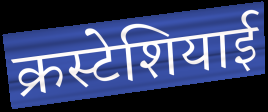
क्रस्टेशियाई